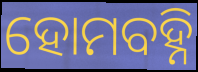
ହୋମବହ୍ନି